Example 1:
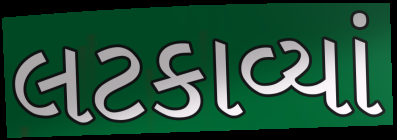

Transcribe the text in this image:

લટકાવ્યાં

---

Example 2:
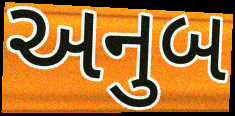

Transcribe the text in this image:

અનુબ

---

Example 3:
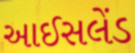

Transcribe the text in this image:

આઈસલેંડ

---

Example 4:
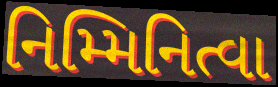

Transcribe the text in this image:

નિમ્મિનિત્વા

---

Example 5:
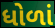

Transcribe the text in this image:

ધોળાં